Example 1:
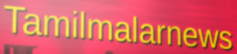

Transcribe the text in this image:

Tamilmalarnews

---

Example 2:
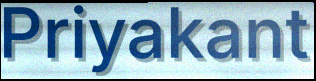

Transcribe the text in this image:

Priyakant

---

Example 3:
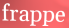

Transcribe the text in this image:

frappe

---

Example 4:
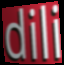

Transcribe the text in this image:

dili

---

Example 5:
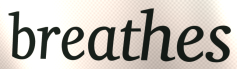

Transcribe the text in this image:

breathes